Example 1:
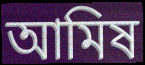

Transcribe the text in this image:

আমিষ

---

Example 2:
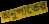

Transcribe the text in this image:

অনুপাতের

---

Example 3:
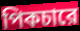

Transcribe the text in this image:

পিকচারে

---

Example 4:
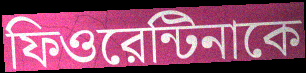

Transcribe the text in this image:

ফিওরেন্টিনাকে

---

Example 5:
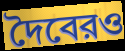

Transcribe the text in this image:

দৈবেরও